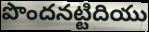
పొందనట్టిదియు